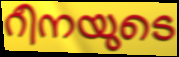
റീനയുടെ